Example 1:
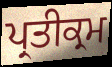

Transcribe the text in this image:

ਪ੍ਰਤੀਕ੍ਰਮ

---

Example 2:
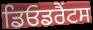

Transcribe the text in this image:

ਡਿਓਡਰੈਂਟਸ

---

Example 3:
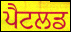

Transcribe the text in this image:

ਪੈਟਲਡ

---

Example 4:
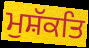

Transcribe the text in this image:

ਮੁਸ਼ੱਕਤਿ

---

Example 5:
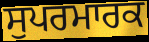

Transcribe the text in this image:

ਸੁਪਰਮਾਰਕ